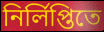
নির্লিপ্তিতে